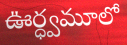
ఊర్ధ్వమూలో